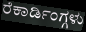
ರೆಕಾರ್ಡಿಂಗ್ಗಳು